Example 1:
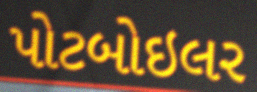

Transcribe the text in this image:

પોટબોઇલર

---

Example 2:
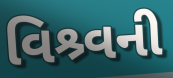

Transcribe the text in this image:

વિશ્ર્વની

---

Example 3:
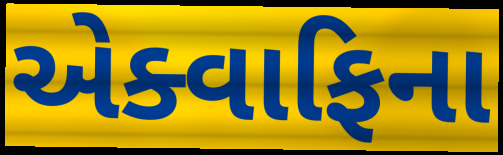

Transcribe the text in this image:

એક્વાફિના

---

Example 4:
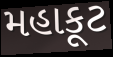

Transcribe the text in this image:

મહાકૂટ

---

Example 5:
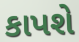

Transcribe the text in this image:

કાપશે